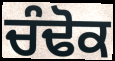
ਚੰਢੋਕ